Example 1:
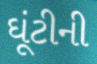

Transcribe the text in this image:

ઘૂંટીની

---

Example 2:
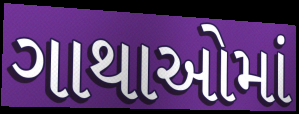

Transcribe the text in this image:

ગાથાઓમાં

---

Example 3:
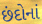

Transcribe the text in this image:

છંદોનાં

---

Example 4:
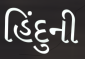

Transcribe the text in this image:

હિંદુની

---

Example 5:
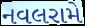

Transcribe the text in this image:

નવલરામે